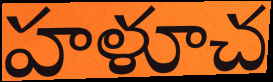
హళూచ